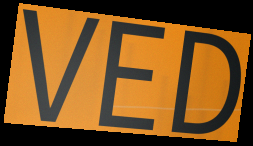
VED